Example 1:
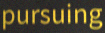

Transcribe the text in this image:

pursuing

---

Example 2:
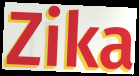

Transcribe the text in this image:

Zika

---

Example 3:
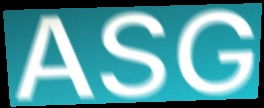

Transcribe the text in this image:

ASG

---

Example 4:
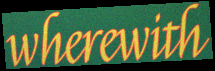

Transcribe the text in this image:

wherewith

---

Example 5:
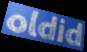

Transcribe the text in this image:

oldid